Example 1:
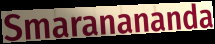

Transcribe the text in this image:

Smaranananda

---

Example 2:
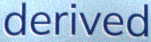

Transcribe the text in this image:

derived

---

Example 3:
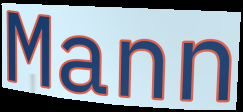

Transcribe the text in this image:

Mann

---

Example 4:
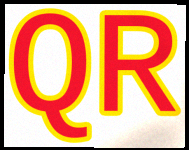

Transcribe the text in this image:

QR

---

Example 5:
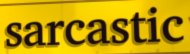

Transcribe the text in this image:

sarcastic